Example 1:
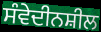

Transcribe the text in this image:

ਸੰਵੇਦੀਨਸ਼ੀਲ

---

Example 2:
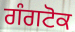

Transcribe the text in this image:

ਗੰਗਟੋਕ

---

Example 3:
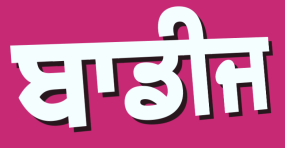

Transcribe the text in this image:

ਬਾਡੀਜ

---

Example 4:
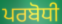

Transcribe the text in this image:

ਪਰਬੋਧੀ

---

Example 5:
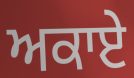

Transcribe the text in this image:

ਅਕਾਏ